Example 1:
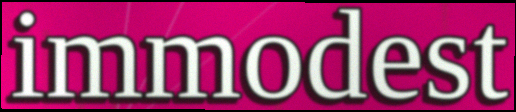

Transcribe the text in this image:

immodest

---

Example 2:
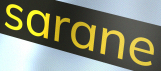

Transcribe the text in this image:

sarane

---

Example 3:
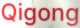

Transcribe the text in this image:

Qigong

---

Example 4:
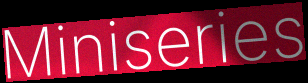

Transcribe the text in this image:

Miniseries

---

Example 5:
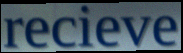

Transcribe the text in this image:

recieve